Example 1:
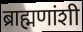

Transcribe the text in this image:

ब्राह्मणांशी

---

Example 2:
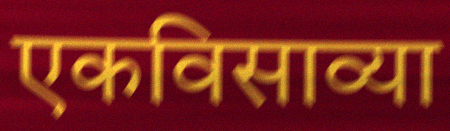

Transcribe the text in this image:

एकविसाव्या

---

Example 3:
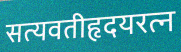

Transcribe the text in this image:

सत्यवतीहृदयरत्न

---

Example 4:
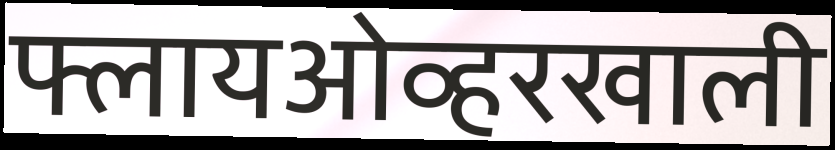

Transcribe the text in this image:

फ्लायओव्हरखाली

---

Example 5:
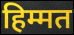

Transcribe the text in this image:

हिम्मत